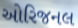
ઓરિજનલ